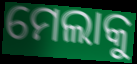
ମେଲାକୁ